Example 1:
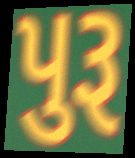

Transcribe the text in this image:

પુરૂ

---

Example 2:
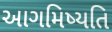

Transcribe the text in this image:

આગમિષ્યતિ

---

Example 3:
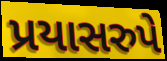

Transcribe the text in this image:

પ્રયાસરુપે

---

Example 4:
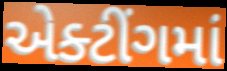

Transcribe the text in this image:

એક્ટીંગમાં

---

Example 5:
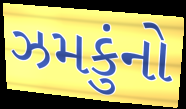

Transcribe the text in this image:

ઝમકુંનો